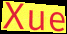
Xue